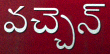
వచ్చెన్